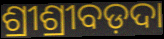
ଶ୍ରୀଶ୍ରୀବଡ଼ଦା